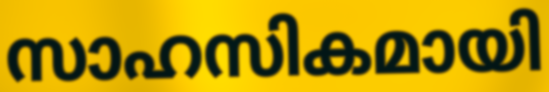
സാഹസികമായി